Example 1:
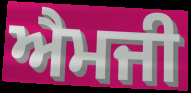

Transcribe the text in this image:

ਐਮਜੀ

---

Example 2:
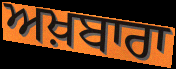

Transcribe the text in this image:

ਅਖ਼ਬਾਰਾ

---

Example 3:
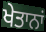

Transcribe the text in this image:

ਖੇਤਾਨਾਂ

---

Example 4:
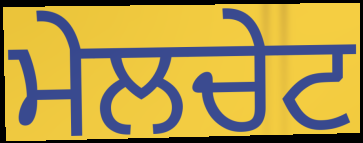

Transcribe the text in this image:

ਮੇਲਚੇਟ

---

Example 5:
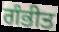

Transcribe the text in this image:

ਗੰਭੀਤ